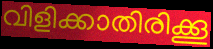
വിളിക്കാതിരിക്കൂ